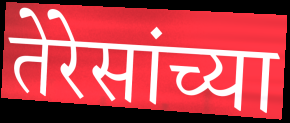
तेरेसांच्या